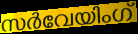
സർവേയിംഗ്